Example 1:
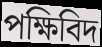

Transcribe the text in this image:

পক্ষিবিদ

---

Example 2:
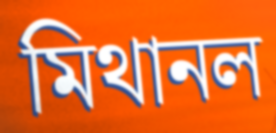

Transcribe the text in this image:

মিথানল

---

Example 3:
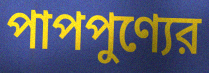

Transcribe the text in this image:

পাপপুণ্যের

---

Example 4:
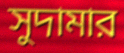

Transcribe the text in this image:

সুদামার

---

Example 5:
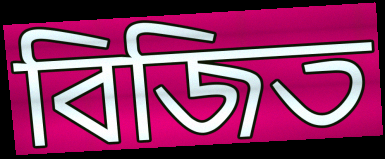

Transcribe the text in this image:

বিজিত